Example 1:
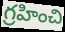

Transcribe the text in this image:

గ్రహించి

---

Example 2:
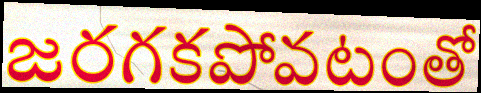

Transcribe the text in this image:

జరగకపోవటంతో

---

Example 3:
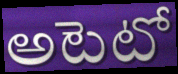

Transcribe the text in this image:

అటెటో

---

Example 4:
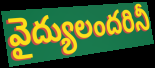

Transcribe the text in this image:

వైద్యులందరినీ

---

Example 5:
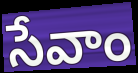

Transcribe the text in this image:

సేవాం